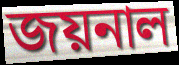
জয়নাল